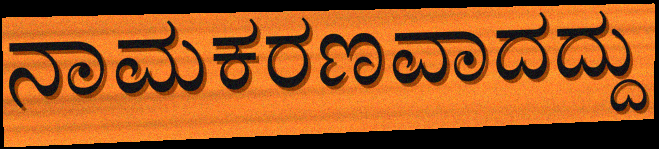
ನಾಮಕರಣವಾದದ್ದು